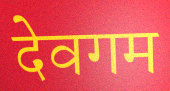
देवगम